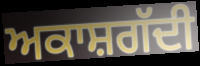
ਅਕਾਸ਼ਗੱਦੀ